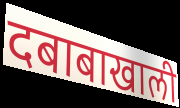
दबाबाखाली